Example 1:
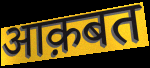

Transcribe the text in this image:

आक़बत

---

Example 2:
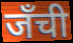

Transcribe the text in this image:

जँची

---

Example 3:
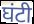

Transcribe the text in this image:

घंटी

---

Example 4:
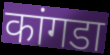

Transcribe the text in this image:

कांगडा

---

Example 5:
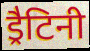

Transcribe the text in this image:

ड्रैटिनी